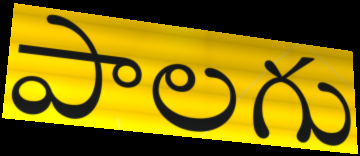
పాలగు